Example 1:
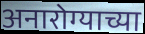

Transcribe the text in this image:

अनारोग्याच्या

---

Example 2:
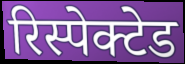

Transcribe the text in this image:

रिस्पेक्टेड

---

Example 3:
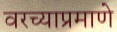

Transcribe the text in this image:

वरच्याप्रमाणे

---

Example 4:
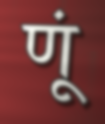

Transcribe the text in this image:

णूं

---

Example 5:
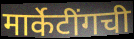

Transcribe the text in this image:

मार्केटींगची